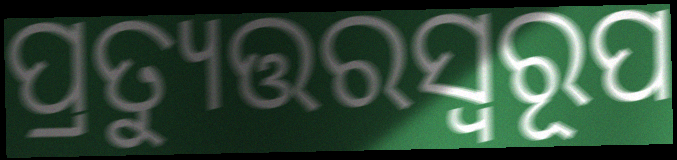
ପ୍ରତ୍ୟୁତ୍ତରସ୍ଵରୂପ